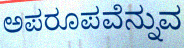
ಅಪರೂಪವೆನ್ನುವ